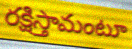
రక్షిస్తామంటూ